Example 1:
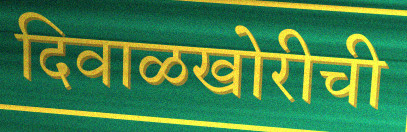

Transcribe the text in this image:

दिवाळखोरीची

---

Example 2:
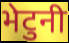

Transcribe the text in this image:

भेटुनी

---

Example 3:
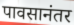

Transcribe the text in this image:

पावसानंतर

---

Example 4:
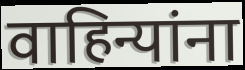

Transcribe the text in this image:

वाहिन्यांना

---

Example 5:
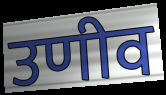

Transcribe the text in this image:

उणीव